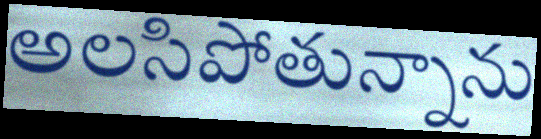
అలసిపోతున్నాను